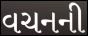
વચનની